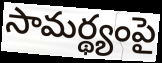
సామర్థ్యంపై